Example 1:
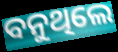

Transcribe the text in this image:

ବନୁଥିଲେ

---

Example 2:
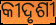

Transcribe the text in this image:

କୀଦୃଶୀ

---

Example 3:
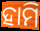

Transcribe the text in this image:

ହାମି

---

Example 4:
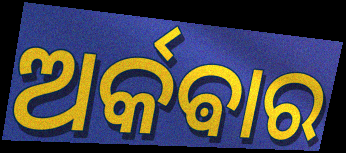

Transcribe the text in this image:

ଅର୍କଵାର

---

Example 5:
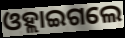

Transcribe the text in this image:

ଓହ୍ଲାଇଗଲେ